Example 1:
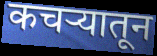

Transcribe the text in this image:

कचर्‍यातून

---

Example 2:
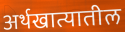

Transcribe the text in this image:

अर्थखात्यातील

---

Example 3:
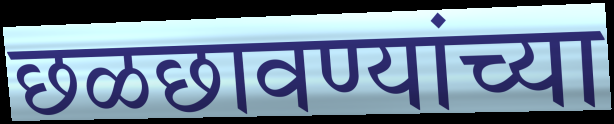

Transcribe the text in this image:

छळछावण्यांच्या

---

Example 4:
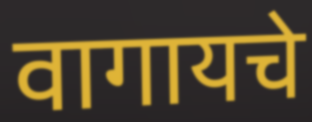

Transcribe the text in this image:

वागायचे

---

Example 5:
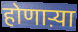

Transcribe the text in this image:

होणाऱ्‍या